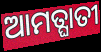
ଆମତ୍ଘାତୀ